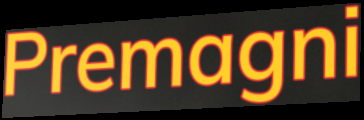
Premagni